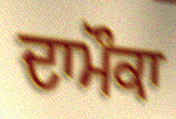
ਦਾਮੌਕਾ